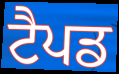
ਟੈਪਡ